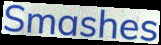
Smashes